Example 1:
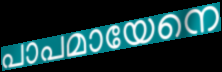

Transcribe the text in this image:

പാപമായേനെ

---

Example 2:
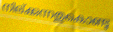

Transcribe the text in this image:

നില്ക്കുന്നതുകൊണ്ടു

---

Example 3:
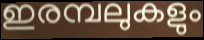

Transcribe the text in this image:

ഇരമ്പലുകളും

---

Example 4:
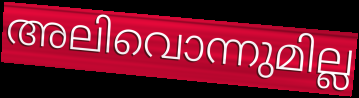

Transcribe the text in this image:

അലിവൊന്നുമില്ല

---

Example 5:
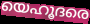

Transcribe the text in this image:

യെഹൂദരെ